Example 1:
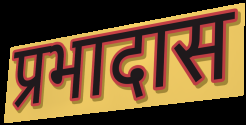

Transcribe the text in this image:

प्रभादास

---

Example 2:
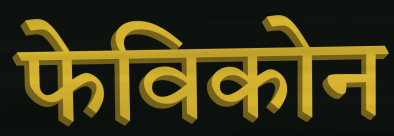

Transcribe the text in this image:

फेविकोन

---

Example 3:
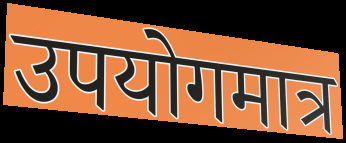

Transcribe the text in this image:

उपयोगमात्र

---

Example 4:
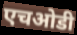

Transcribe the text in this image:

एचओडी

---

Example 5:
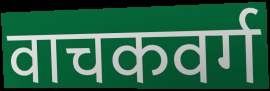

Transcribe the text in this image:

वाचकवर्ग